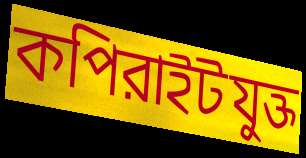
কপিরাইটযুক্ত